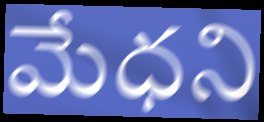
మేధని